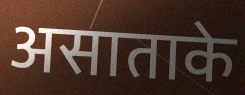
असाताके